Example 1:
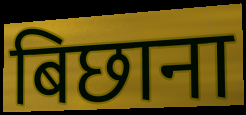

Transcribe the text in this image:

बिछाना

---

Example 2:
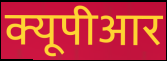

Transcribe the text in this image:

क्यूपीआर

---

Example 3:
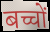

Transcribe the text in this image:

बच्चों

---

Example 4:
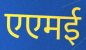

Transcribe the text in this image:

एएमई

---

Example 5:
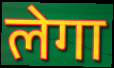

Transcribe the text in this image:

लेगा